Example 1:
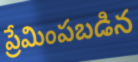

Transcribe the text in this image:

ప్రేమింపబడిన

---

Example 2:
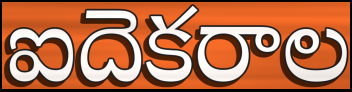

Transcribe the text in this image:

ఐదెకరాల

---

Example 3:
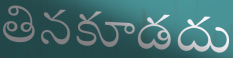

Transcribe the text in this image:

తినకూడదు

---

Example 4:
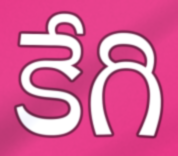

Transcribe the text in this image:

కేగి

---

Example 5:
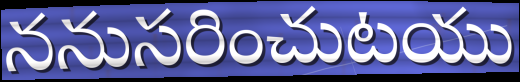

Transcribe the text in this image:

ననుసరించుటయు